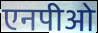
एनपीओ